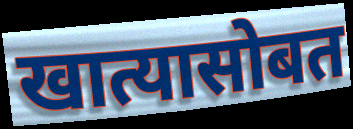
खात्यासोबत